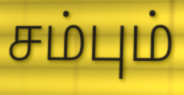
சம்பும்